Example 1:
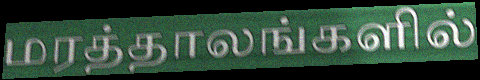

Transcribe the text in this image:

மரத்தாலங்களில்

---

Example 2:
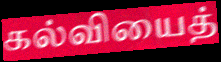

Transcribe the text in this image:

கல்வியைத்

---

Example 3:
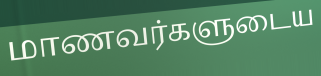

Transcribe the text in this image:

மாணவர்களுடைய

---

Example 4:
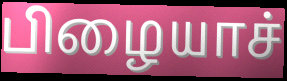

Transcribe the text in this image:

பிழையாச்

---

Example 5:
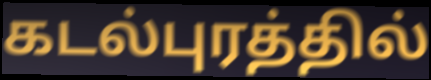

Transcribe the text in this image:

கடல்புரத்தில்